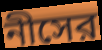
নীসের